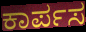
ಕಾರ್ಪಸ